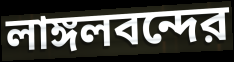
লাঙ্গলবন্দের